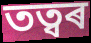
তত্বৰ